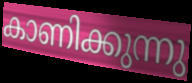
കാണിക്കുന്നു